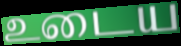
உடைய